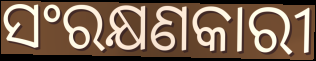
ସଂରକ୍ଷଣକାରୀ